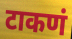
टाकणं